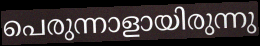
പെരുന്നാളായിരുന്നു